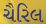
ચૈરિલ